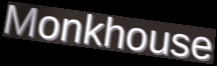
Monkhouse